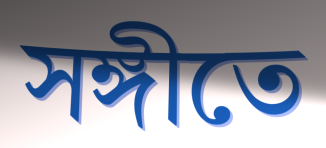
সঙ্গীতে